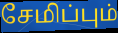
சேமிப்பும்